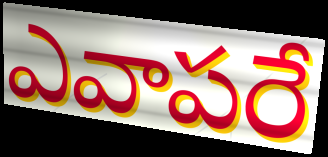
ఎవాపరే